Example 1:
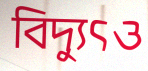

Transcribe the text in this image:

বিদ্যুৎও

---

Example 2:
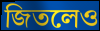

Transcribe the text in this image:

জিতলেও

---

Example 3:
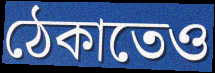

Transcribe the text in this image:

ঠেকাতেও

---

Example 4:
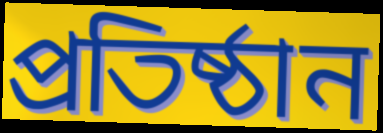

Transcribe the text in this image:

প্রতিষ্ঠান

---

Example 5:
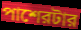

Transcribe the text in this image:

পাশেরটার